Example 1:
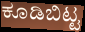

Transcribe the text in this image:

ಕೂಡಿಬಿಟ್ಟ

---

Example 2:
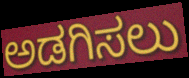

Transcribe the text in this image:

ಅಡಗಿಸಲು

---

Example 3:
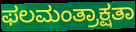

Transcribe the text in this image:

ಫಲಮಂತ್ರಾಕ್ಷತಾ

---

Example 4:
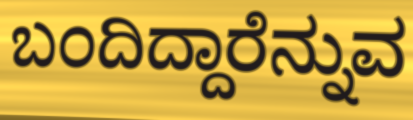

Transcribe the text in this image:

ಬಂದಿದ್ದಾರೆನ್ನುವ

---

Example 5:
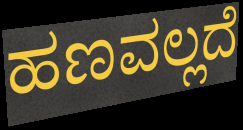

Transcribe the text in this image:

ಹಣವಲ್ಲದೆ